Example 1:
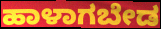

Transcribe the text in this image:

ಹಾಳಾಗಬೇಡ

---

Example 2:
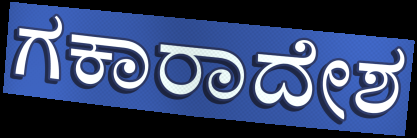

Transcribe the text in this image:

ಗಕಾರಾದೇಶ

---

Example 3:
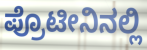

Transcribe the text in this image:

ಪ್ರೊಟೀನಿನಲ್ಲಿ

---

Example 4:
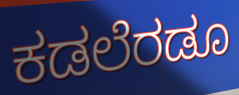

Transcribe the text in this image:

ಕಡಲೆರಡೂ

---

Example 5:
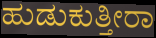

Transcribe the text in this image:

ಹುಡುಕುತ್ತೀರಾ